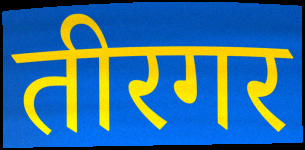
तीरगर